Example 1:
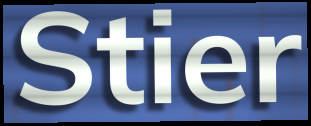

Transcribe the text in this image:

Stier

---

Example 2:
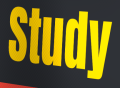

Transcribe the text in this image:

Study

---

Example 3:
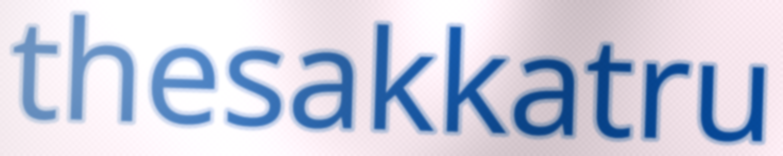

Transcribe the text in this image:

thesakkatru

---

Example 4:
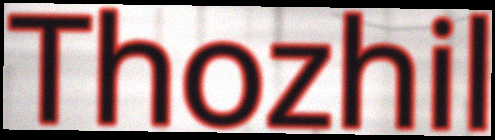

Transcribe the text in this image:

Thozhil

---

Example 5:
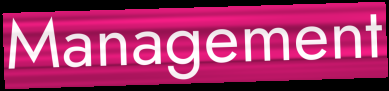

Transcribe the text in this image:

Management